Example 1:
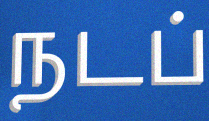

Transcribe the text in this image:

நடப்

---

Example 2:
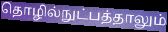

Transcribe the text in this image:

தொழில்நுட்பத்தாலும்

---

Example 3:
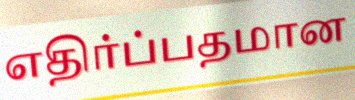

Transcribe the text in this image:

எதிர்ப்பதமான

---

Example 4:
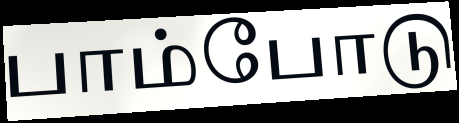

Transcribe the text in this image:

பாம்போடு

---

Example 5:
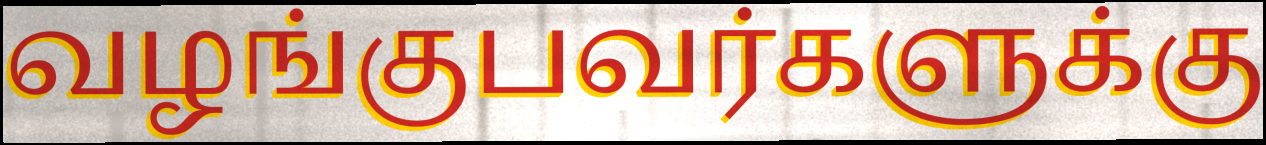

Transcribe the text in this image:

வழங்குபவர்களுக்கு